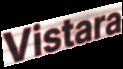
Vistara